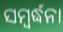
ସମ୍ୱର୍ଦ୍ଧନା